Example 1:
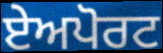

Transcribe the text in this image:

ਏਅਪੋਰਟ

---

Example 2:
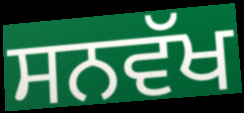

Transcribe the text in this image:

ਸਨਵੱਖ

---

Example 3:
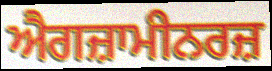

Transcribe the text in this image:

ਐਗਜ਼ਾਮੀਨਰਜ਼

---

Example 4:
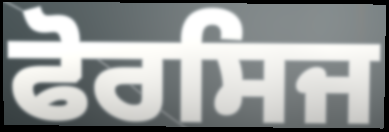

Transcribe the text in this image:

ਫੋਰਸਿਜ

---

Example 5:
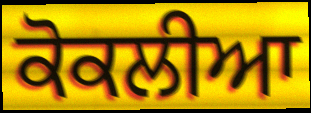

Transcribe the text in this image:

ਕੋਕਲੀਆ